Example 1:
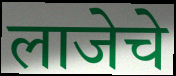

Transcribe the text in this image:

लाजेचे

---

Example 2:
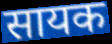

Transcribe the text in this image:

सायक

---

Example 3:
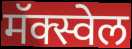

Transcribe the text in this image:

मॅक्स्वेल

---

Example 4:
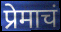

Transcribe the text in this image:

प्रेमाचं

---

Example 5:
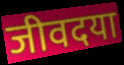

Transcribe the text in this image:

जीवदया